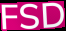
FSD